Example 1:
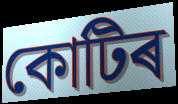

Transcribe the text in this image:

কোটিৰ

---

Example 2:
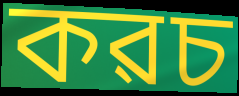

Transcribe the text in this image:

কৱচ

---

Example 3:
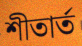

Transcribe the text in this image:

শীতাৰ্ত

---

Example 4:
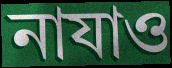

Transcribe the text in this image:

নাযাও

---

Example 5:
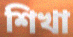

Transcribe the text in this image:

শিখা